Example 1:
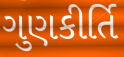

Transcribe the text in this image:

ગુણકીર્તિ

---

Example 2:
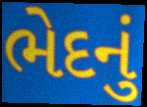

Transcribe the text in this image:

ભેદનું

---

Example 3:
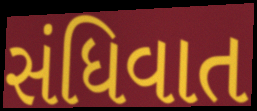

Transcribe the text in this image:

સંધિવાત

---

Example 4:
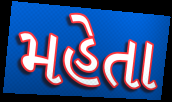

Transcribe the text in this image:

મહેતા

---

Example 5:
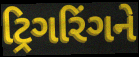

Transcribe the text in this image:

ટ્રિગરિંગને